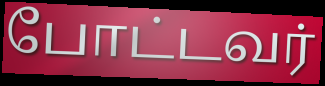
போட்டவர்